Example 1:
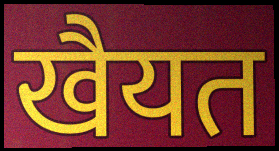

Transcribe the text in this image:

खैयत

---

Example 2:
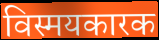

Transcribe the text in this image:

विस्मयकारक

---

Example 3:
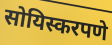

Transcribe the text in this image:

सोयिस्करपणे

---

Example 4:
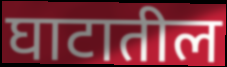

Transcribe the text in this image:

घाटातील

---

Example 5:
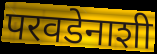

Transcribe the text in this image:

परवडेनाशी